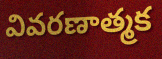
వివరణాత్మక